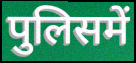
पुलिसमें